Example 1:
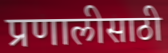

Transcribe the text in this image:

प्रणालीसाठी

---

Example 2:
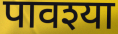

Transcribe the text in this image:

पावश्या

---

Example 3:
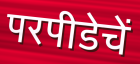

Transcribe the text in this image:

परपीडेचें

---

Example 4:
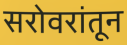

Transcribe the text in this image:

सरोवरांतून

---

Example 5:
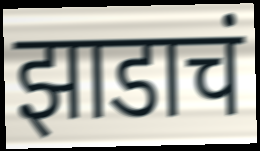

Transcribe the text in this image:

झाडाचं